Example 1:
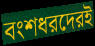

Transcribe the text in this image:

বংশধরদেরই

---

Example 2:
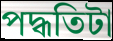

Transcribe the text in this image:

পদ্ধতিটা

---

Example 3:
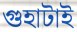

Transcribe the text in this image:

গুহাটাই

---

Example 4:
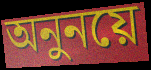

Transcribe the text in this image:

অনুনয়ে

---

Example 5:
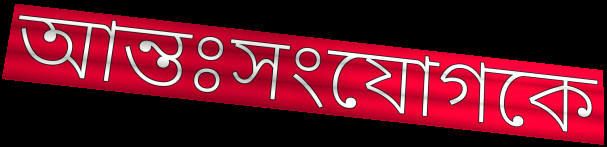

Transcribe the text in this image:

আন্তঃসংযোগকে